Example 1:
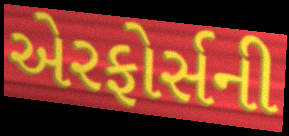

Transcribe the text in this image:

એરફોર્સની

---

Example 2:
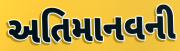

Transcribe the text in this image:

અતિમાનવની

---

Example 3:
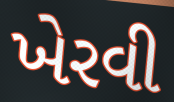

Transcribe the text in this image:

ખેરવી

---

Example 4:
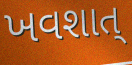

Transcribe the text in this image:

ખવશાત્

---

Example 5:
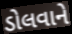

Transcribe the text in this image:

ડોલવાને